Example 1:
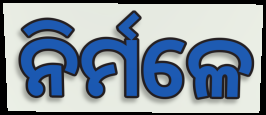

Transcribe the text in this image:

ନିର୍ମଳେ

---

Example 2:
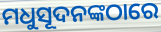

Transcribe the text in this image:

ମଧୁସୂଦନଙ୍କଠାରେ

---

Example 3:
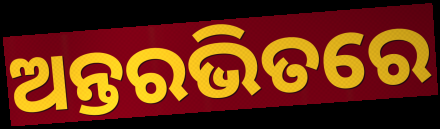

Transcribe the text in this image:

ଅନ୍ତରଭିତରେ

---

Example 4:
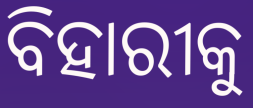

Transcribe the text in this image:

ବିହାରୀକୁ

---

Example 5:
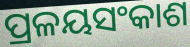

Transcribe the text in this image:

ପ୍ରଳୟସଂକାଶ